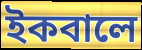
ইকবালে